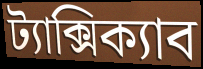
ট্যাক্সিক্যাব